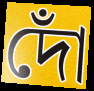
দোঁ